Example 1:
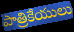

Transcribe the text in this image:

పాత్రికేయులు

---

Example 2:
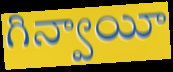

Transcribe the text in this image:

గిన్వాయీ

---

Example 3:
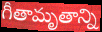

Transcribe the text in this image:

గీతామృతాన్ని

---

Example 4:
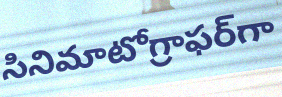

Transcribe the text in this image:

సినిమాటోగ్రాఫర్‌గా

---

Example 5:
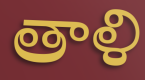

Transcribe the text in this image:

తాళి